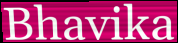
Bhavika